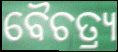
ବୈଚତ୍ର୍ୟ